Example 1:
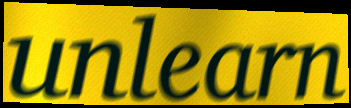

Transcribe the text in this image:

unlearn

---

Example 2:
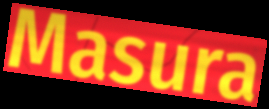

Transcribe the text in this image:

Masura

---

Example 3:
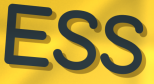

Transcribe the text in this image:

ESS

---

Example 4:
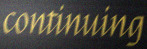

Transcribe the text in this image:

continuing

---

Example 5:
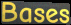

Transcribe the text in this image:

Bases